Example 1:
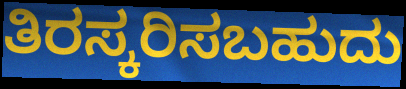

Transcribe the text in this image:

ತಿರಸ್ಕರಿಸಬಹುದು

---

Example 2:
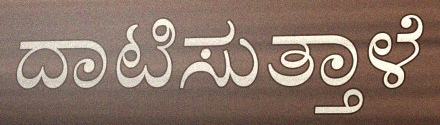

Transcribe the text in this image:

ದಾಟಿಸುತ್ತಾಳೆ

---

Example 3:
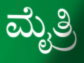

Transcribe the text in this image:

ಮೈತ್ರಿ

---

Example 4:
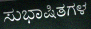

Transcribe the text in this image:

ಸುಭಾಷಿತಗಳ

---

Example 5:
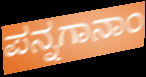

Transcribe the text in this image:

ಪನ್ನಗಾನಾಂ